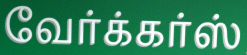
வேர்க்கர்ஸ்